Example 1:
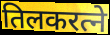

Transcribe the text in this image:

तिलकरत्ने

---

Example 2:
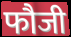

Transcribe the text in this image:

फौजी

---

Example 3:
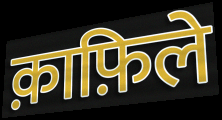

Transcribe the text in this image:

क़ाफ़िले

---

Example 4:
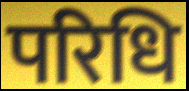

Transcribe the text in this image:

परिधि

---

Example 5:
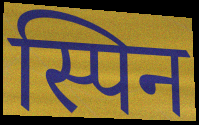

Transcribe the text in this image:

स्पिन